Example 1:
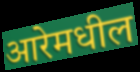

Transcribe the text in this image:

आरेमधील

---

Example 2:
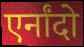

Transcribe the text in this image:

एर्नांदो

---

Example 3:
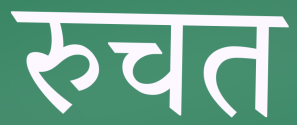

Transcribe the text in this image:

रुचत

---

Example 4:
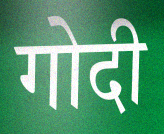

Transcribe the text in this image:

गोदी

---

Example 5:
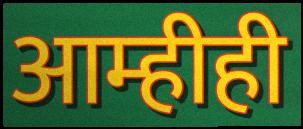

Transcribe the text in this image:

आम्हीही